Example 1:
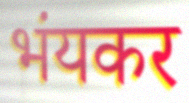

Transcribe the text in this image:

भंयकर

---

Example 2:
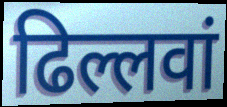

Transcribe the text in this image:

ढिल्लवां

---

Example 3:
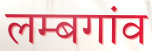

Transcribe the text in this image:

लम्बगांव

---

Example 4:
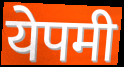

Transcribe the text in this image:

येपमी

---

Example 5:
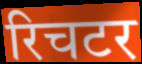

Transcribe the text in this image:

रिचटर